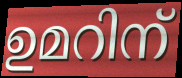
ഉമറിന്